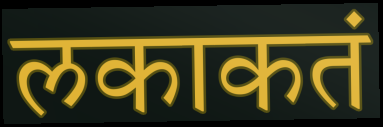
लकाकतं